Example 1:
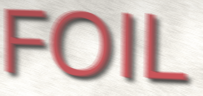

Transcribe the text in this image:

FOIL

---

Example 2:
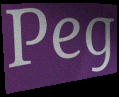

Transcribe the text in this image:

Peg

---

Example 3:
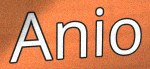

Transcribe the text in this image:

Anio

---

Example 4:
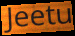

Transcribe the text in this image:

Jeetu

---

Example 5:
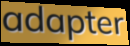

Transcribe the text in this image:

adapter